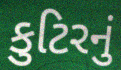
કુટિરનું